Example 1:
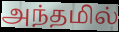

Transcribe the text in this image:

அந்தமில்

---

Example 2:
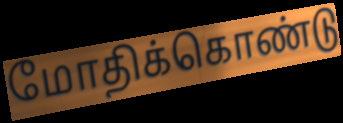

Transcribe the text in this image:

மோதிக்கொண்டு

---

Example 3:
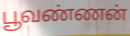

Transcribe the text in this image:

பூவண்ணன்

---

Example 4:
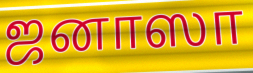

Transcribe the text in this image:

ஜனாஸா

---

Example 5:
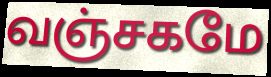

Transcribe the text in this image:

வஞ்சகமே